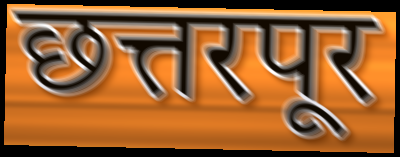
छत्तरपूर